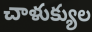
చాళుక్యుల